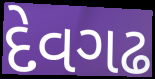
દેવગઢ